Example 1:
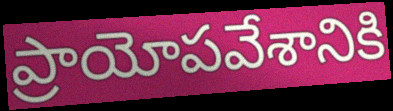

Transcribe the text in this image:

ప్రాయోపవేశానికి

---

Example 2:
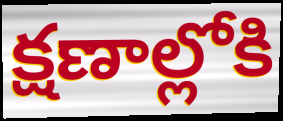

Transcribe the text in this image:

క్షణాల్లోకి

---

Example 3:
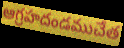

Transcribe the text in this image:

ఆగ్రహదండముచేత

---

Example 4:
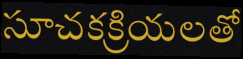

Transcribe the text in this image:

సూచకక్రియలతో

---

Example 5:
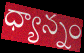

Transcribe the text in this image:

ధ్యాన్నం